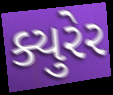
ક્યુરેર